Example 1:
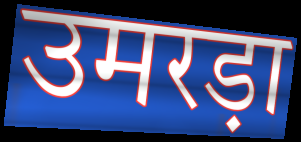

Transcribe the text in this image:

उमरड़ा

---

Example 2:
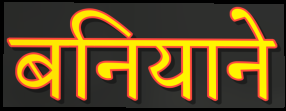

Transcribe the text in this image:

बनियाने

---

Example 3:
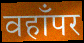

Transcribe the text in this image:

वहाँपर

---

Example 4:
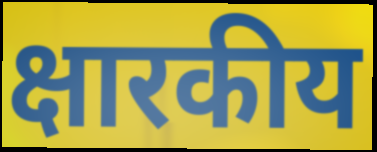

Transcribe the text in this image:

क्षारकीय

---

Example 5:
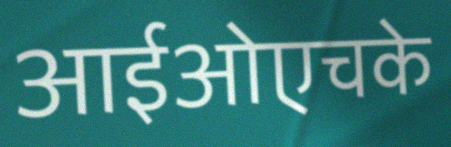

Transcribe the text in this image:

आईओएचके